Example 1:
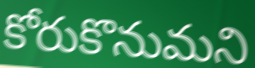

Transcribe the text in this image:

కోరుకొనుమని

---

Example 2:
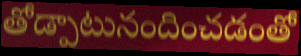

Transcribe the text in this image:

తోడ్పాటునందించడంతో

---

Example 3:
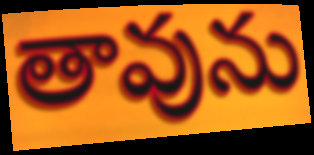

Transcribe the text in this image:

తావును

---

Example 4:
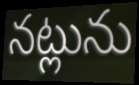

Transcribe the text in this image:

నట్లును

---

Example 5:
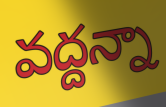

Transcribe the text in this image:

వద్దన్నా